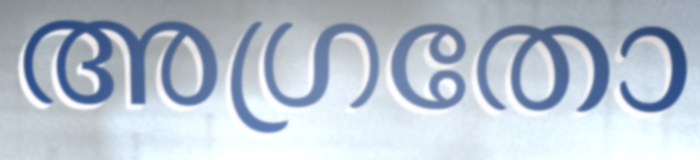
അഗ്രതോ